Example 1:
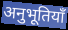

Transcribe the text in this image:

अनुभूतियाँ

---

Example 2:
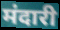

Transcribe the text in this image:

मंदारी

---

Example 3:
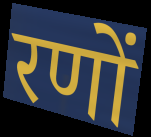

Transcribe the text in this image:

रणों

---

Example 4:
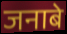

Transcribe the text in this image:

जनाबे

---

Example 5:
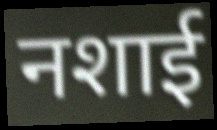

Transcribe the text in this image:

नशाई